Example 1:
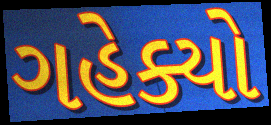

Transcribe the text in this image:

ગહેક્યો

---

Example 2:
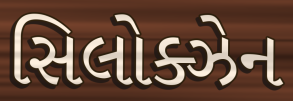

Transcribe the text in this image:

સિલોક્ઝેન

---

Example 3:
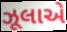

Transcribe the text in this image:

ઝૂલાએ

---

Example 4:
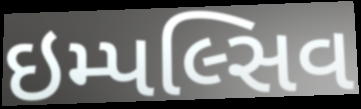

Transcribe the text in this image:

ઇમ્પલ્સિવ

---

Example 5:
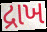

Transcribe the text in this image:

દ્રાખ